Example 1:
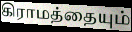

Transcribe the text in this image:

கிராமத்தையும்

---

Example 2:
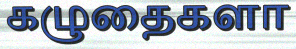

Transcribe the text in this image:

கழுதைகளா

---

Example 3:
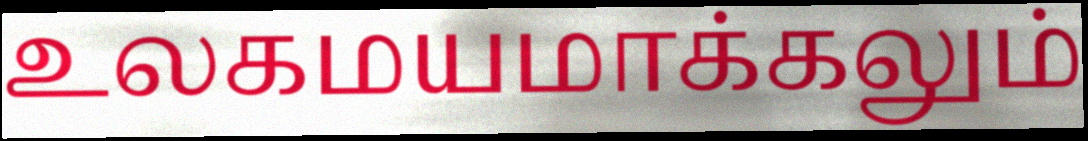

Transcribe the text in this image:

உலகமயமாக்கலும்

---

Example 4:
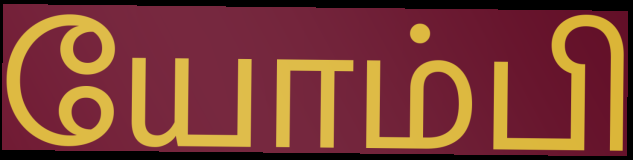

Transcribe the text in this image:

யோம்பி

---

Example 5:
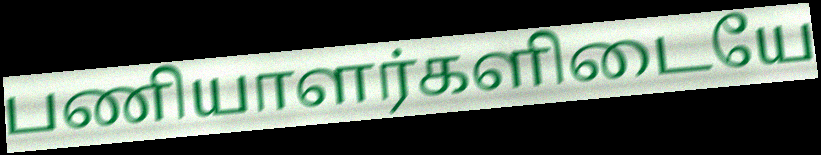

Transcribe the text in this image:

பணியாளர்களிடையே